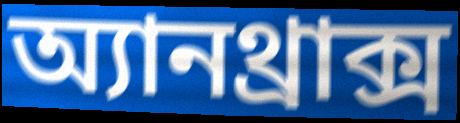
অ্যানথ্রাক্স